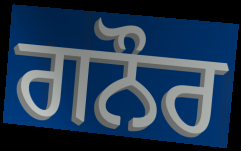
ਗਨੌਰ